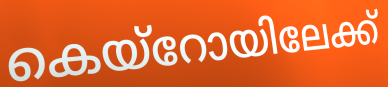
കെയ്റോയിലേക്ക്